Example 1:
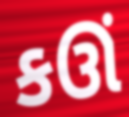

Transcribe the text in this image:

કઊં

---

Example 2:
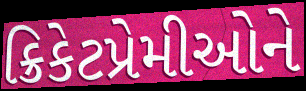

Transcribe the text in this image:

ક્રિકેટપ્રેમીઓને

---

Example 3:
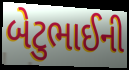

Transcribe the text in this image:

બેટુભાઈની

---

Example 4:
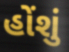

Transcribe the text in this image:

હોંશું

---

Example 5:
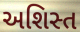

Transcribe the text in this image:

અશિસ્ત